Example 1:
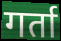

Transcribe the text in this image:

गर्ता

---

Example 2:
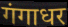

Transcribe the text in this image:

गंगाधर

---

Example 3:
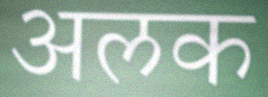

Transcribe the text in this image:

अलक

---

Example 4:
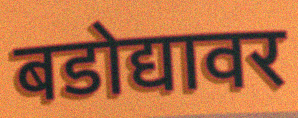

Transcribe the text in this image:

बडोद्यावर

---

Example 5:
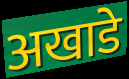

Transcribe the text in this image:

अखाडे